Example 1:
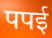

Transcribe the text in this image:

पपई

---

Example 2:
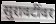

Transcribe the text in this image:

सुरावटींवर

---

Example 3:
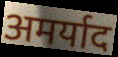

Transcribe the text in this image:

अमर्याद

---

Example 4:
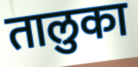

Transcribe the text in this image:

तालुका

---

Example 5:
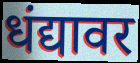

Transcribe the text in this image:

धंद्यावर